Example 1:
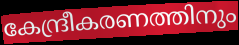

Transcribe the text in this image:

കേന്ദ്രീകരണത്തിനും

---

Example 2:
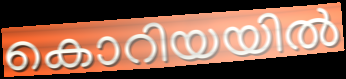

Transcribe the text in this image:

കൊറിയയിൽ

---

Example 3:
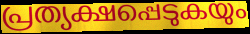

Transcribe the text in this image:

പ്രത്യക്ഷപ്പെടുകയും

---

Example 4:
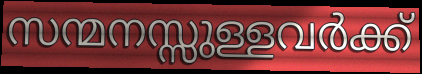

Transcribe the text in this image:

സന്മനസ്സുള്ളവർക്ക്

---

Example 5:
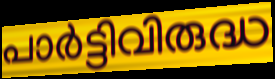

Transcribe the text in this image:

പാർട്ടിവിരുദ്ധ